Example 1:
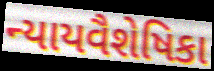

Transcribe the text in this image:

ન્યાયવૈશેષિકા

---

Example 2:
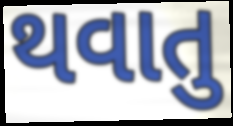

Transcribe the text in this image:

થવાતુ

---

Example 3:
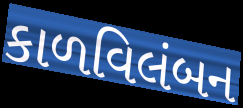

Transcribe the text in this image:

કાળવિલંબન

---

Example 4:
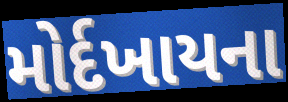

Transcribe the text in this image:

મોર્દખાયના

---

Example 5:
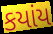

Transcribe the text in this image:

કયાંય